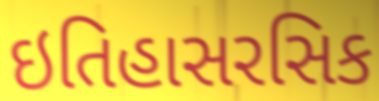
ઇતિહાસરસિક